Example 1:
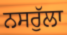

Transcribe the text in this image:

ਨਸਰੁੱਲਾ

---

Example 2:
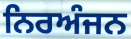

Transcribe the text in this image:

ਨਿਰਅੰਜਨ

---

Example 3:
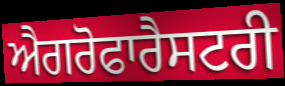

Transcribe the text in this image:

ਐਗਰੋਫਾਰੈਸਟਰੀ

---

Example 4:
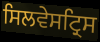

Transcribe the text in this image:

ਸਿਲਵੇਸਟ੍ਰਿਸ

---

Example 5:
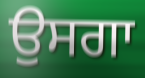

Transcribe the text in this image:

ਉਸਗਾ